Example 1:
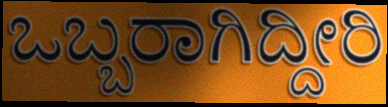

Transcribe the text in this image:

ಒಬ್ಬರಾಗಿದ್ದೀರಿ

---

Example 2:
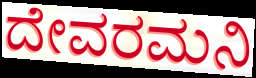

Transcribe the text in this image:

ದೇವರಮನಿ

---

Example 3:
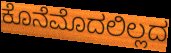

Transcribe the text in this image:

ಕೊನೆಮೊದಲಿಲ್ಲದ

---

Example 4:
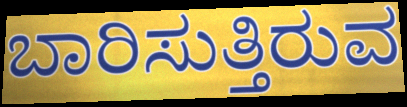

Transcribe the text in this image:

ಬಾರಿಸುತ್ತಿರುವ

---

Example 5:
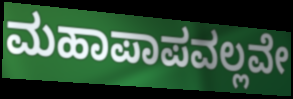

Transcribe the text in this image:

ಮಹಾಪಾಪವಲ್ಲವೇ